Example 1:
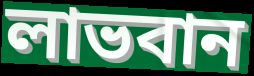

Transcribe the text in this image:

লাভবান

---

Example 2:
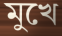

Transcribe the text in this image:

মুখে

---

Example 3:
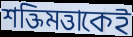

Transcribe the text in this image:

শক্তিমত্তাকেই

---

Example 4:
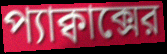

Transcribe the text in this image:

প্যাক্বাক্সের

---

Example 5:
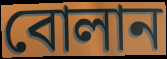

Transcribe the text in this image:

বোলান